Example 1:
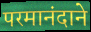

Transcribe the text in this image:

परमानंदाने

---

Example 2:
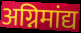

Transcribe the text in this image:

अग्निमांद्य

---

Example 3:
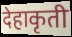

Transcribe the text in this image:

देहाकृती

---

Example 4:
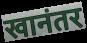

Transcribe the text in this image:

खानंतर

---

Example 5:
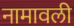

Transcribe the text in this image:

नामावली